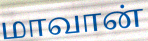
மாவான்